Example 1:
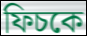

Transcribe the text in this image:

ফিচকে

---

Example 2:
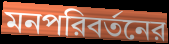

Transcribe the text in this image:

মনপরিবর্তনের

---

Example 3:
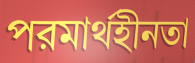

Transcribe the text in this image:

পরমার্থহীনতা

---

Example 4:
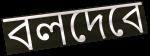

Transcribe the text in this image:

বলদেবে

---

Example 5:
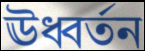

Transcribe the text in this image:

ঊধ্বর্তন